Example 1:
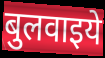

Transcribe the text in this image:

बुलवाइये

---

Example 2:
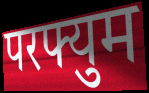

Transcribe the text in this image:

परफ्युम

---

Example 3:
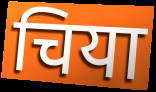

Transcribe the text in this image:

चिया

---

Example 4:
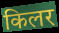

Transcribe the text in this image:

किलर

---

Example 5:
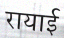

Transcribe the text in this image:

रायाई